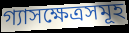
গ্যাসক্ষেত্রসমূহ